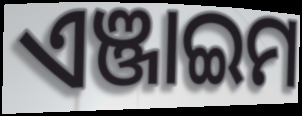
ଏଞ୍ଜାଇମ